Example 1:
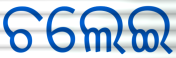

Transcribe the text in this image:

ଚଲେଇ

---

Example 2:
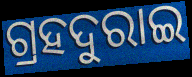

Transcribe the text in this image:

ଗ୍ରହଦୁରାଇ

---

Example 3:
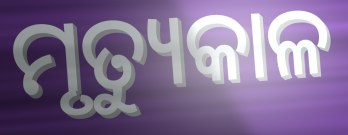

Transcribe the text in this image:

ମୃତ୍ୟୁକାଳ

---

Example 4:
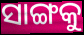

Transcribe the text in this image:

ସାଙ୍ଗକୁ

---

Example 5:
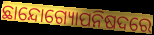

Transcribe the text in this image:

ଛାନ୍ଦୋଗ୍ୟୋପନିଷଦରେ